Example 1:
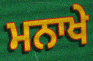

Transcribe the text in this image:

ਮਨਾਖੇ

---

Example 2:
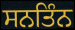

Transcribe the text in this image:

ਸਨਤਿੰਨ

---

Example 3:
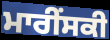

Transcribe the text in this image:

ਮਾਰੀੰਸਕੀ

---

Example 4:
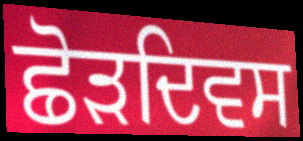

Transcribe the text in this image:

ਛੋੜਦਿਵਸ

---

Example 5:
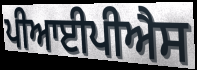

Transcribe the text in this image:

ਪੀਆਈਪੀਐਸ